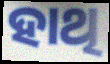
ହାଥି